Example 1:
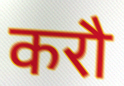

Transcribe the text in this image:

करौ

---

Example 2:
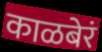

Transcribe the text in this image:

काळबेरं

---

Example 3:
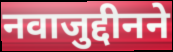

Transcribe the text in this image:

नवाजुद्दीनने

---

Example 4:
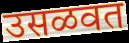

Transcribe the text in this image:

उसळवत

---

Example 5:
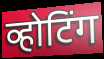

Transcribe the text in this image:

व्होटिंग